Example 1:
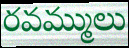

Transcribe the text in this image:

రవమ్ములు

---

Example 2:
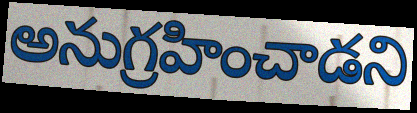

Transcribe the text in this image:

అనుగ్రహించాడని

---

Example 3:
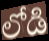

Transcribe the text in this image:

లోడి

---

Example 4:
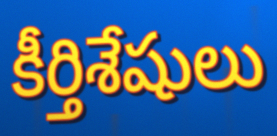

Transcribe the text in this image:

కీర్తిశేషులు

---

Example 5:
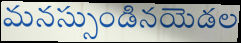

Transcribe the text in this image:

మనస్సుండినయెడల